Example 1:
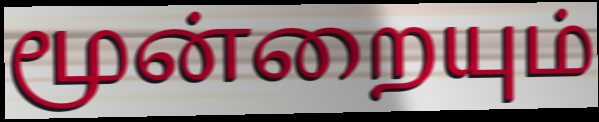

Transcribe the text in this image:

மூன்றையும்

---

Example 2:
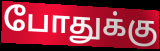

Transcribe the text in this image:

போதுக்கு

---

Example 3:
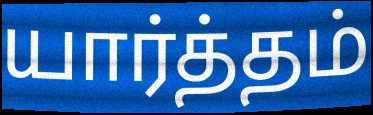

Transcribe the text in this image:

யார்த்தம்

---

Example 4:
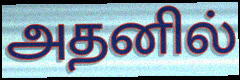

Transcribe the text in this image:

அதனில்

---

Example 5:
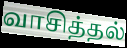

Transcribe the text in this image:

வாசித்தல்